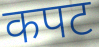
कपट